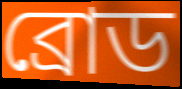
ব্রোড